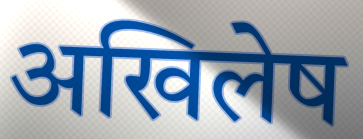
अखिलेष